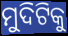
ମୁଦିଟିକୁ